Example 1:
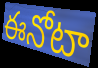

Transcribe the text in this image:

ఈనోటా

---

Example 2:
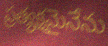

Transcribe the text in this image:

ప్రత్యక్షమైనేను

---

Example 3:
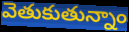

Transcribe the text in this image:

వెతుకుతున్నాం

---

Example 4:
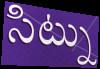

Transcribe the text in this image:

సిట్ను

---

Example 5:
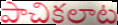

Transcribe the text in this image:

పాచికలాట